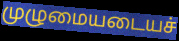
முழுமையடையச்